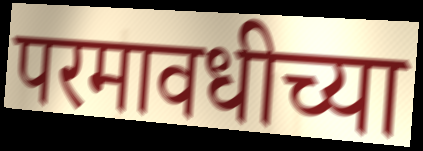
परमावधीच्या